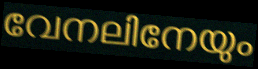
വേനലിനേയും